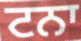
ਟਨਾ